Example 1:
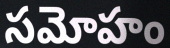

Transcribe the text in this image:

సమోహం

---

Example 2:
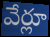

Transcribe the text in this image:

వేర్లూ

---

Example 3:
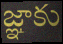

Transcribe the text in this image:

జ్ఞాకు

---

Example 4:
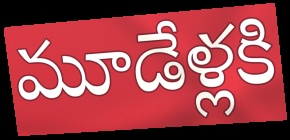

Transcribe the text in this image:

మూడేళ్లకి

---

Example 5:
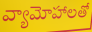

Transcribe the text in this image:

వ్యామోహాలతో